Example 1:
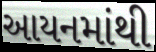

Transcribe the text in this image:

આયનમાંથી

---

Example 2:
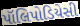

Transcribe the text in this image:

પૉલિપોડિયેસી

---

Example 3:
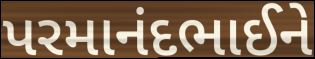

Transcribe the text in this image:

પરમાનંદભાઈને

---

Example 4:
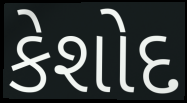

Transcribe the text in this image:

કેશોદ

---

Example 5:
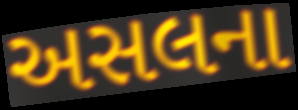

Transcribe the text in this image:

અસલના